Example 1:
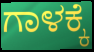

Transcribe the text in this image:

ಗಾಳಕ್ಕೆ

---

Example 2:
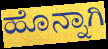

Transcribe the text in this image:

ಹೊನ್ನಾಗಿ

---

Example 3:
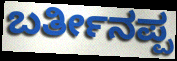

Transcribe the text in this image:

ಬರ್ತೀನಪ್ಪ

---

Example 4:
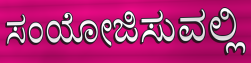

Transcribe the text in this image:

ಸಂಯೋಜಿಸುವಲ್ಲಿ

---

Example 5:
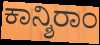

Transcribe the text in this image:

ಕಾನ್ಶಿರಾಂ